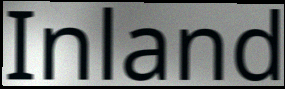
Inland